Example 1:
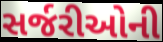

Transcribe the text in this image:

સર્જરીઓની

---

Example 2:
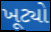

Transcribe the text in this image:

ખૂટ્યો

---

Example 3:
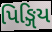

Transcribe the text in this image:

પિઙ્ગિય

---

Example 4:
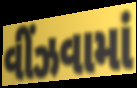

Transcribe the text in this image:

વીંઝવામાં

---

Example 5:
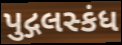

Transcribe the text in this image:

પુદ્ગલસ્કંધ